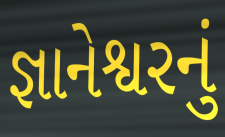
જ્ઞાનેશ્વરનું